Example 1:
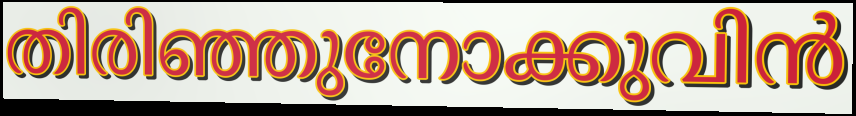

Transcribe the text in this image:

തിരിഞ്ഞുനോക്കുവിൻ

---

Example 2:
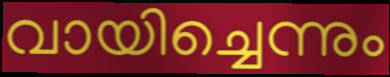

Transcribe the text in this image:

വായിച്ചെന്നും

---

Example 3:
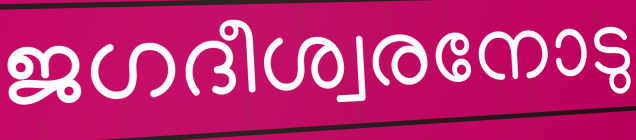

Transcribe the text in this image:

ജഗദീശ്വരനോടു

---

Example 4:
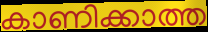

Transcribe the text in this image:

കാണിക്കാത്ത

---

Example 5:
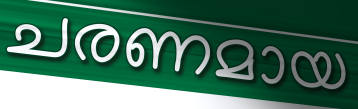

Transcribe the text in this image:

ചരണമായ